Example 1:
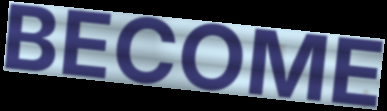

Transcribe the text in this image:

BECOME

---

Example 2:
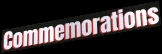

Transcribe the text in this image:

Commemorations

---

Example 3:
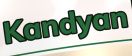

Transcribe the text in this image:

Kandyan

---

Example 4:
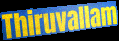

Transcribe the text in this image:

Thiruvallam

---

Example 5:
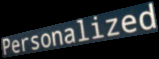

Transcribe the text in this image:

Personalized